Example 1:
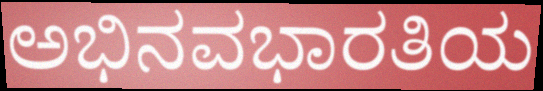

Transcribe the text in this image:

ಅಭಿನವಭಾರತಿಯ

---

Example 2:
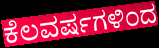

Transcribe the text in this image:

ಕೆಲವರ್ಷಗಳಿಂದ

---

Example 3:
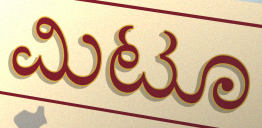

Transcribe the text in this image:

ಮಿಟೂ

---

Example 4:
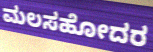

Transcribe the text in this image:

ಮಲಸಹೋದರ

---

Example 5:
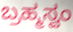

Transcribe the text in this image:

ಬ್ರಹ್ಮಸ್ವಂ